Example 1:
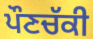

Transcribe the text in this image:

ਪੌਣਚੱਕੀ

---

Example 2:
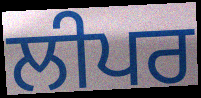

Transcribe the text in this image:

ਲੀਪਰ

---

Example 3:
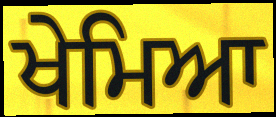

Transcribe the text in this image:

ਖੇਮਿਆ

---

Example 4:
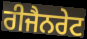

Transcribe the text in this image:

ਰੀਜੈਨਰੇਟ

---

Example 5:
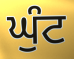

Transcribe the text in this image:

ਘੁੰਟ